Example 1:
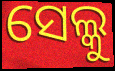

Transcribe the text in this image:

ସେଲ୍କୁ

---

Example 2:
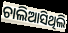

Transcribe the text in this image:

ଚାଲିଆସିଥିଲି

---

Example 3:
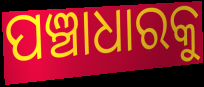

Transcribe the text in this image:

ପଞ୍ଚାଧାରକୁ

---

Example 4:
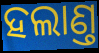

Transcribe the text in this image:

ହଲାଣ୍ତ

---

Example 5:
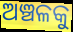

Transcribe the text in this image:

ଅଞ୍ଚଳକୁ